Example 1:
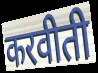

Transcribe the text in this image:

करवीती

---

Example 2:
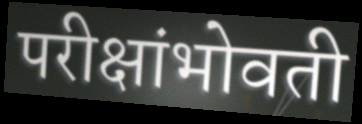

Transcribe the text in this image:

परीक्षांभोवती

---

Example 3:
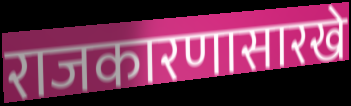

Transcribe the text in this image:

राजकारणासारखे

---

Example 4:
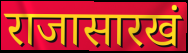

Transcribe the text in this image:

राजासारखं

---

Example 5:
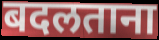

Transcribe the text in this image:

बदलताना